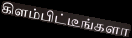
கிளம்பிட்டீங்களா